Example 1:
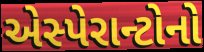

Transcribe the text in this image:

એસ્પેરાન્ટોનો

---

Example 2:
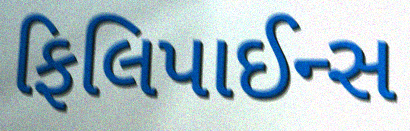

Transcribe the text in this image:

ફિલિપાઈન્સ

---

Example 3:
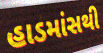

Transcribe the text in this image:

હાડમાંસથી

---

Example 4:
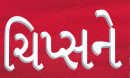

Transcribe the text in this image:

ચિપ્સને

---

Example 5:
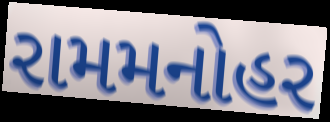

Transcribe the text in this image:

રામમનોહર